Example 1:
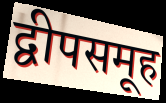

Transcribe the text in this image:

द्वीपसमूह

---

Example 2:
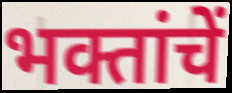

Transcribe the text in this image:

भक्तांचें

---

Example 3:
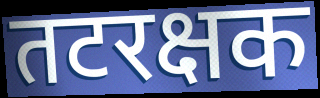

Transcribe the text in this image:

तटरक्षक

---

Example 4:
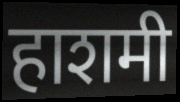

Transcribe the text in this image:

हाशमी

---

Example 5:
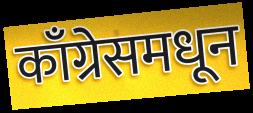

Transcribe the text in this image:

काँग्रेसमधून